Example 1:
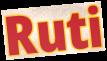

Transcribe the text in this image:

Ruti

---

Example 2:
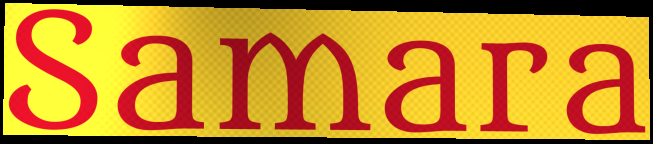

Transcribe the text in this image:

Samara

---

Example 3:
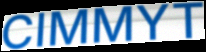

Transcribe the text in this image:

CIMMYT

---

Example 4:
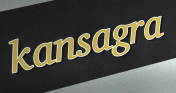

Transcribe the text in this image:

kansagra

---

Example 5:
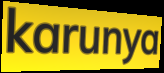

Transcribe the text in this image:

karunya